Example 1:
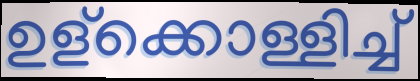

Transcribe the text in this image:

ഉള്ക്കൊള്ളിച്ച്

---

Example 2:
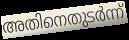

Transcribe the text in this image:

അതിനെതുടർന്ന്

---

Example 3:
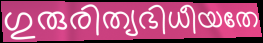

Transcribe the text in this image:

ഗുരുരിത്യഭിധീയതേ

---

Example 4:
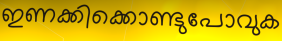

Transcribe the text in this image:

ഇണക്കിക്കൊണ്ടുപോവുക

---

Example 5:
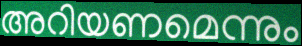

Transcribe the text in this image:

അറിയണമെന്നും